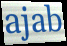
ajab